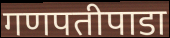
गणपतीपाडा